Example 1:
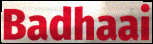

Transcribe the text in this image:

Badhaai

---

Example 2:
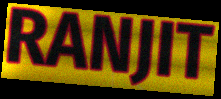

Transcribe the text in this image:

RANJIT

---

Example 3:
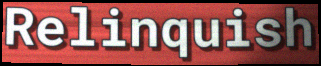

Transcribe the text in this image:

Relinquish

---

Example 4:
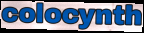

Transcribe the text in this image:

colocynth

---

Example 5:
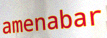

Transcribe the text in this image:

amenabar